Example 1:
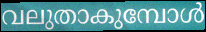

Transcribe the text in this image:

വലുതാകുമ്പോൾ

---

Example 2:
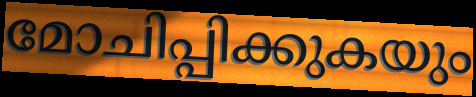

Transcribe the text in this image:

മോചിപ്പിക്കുകയും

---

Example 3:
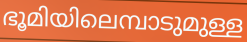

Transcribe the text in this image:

ഭൂമിയിലെമ്പാടുമുള്ള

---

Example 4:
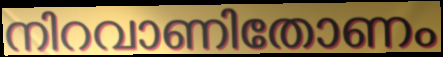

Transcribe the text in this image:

നിറവാണിതോണം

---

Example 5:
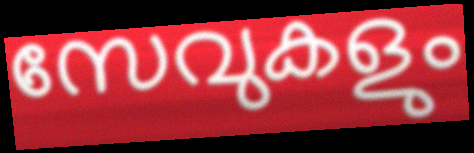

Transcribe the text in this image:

സേവുകളും